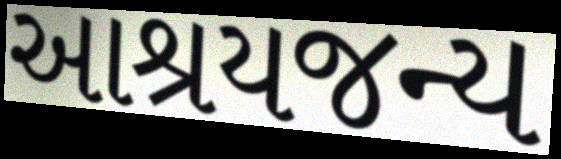
આશ્રયજન્ય